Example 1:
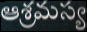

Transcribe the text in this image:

ఆశ్రమస్య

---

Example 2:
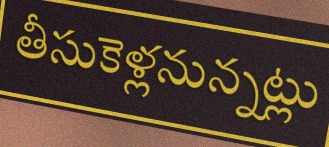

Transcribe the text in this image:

తీసుకెళ్లనున్నట్లు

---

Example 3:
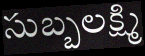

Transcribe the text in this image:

సుబ్బలక్ష్మి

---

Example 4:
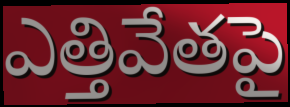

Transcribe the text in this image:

ఎత్తివేతపై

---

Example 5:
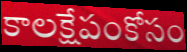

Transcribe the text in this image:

కాలక్షేపంకోసం